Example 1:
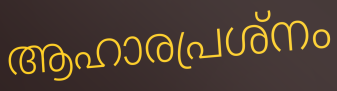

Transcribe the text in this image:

ആഹാരപ്രശ്നം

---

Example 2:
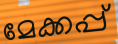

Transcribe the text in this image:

മേക്കപ്പ്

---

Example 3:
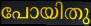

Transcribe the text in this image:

പോയിതു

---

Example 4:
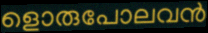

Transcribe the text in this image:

ളൊരുപോലവൻ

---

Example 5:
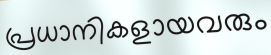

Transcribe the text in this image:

പ്രധാനികളായവരും